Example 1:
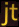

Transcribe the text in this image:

jt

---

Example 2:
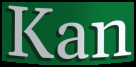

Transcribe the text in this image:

Kan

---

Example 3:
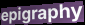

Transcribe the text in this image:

epigraphy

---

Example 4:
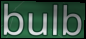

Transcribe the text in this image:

bulb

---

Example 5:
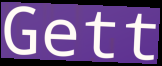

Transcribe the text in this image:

Gett